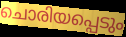
ചൊരിയപ്പെടും